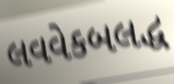
લવવેકબલદ્ધ